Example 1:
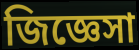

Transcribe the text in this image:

জিজ্ঞেসা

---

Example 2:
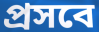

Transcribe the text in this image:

প্রসবে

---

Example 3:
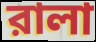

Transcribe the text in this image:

রালা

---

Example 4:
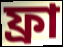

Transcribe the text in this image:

ফ্রা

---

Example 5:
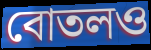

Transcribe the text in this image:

বোতলও